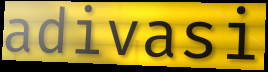
adivasi